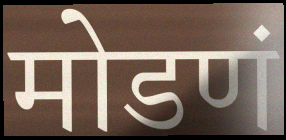
मोडणं